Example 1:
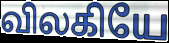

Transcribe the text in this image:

விலகியே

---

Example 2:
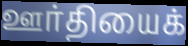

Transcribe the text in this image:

ஊர்தியைக்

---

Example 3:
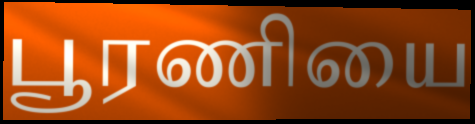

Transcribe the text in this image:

பூரணியை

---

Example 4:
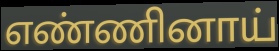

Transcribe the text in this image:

எண்ணினாய்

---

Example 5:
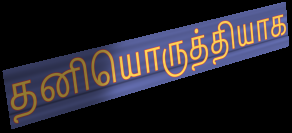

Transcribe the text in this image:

தனியொருத்தியாக